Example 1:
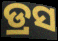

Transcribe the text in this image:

ଡ୍ରସ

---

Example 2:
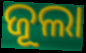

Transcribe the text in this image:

ଜୂଲା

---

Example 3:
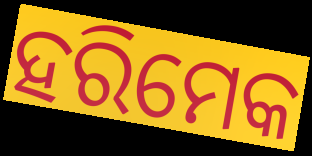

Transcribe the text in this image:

ହରିମେକ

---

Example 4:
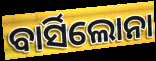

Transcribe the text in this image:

ବାର୍ସିଲୋନା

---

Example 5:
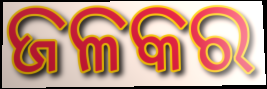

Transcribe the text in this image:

ଜଳକର